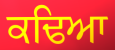
ਕਢਿਆ